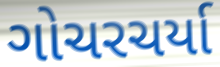
ગોચરચર્યા